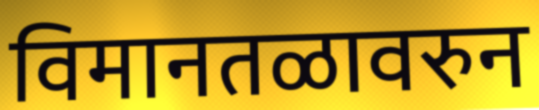
विमानतळावरुन